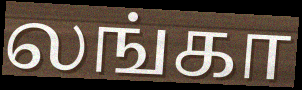
லங்கா